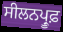
ਸੀਲਨਪ੍ਰੂਫ਼